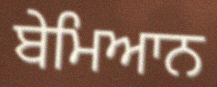
ਬੇਮਿਆਨ